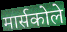
मार्सकोले